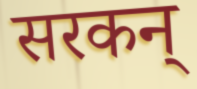
सरकन्